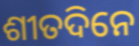
ଶୀତଦିନେ